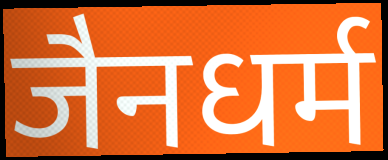
जैनधर्म